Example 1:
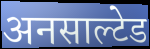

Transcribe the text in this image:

अनसाल्टेड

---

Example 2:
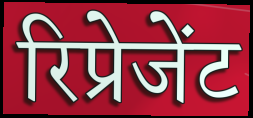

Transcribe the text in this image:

रिप्रेजेंट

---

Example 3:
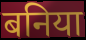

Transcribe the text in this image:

बनिया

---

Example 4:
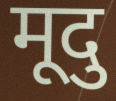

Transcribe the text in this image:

मूदु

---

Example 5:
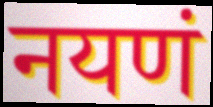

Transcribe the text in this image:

नयणं